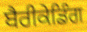
ਬੈਰੀਕੇਡਿੰਗ